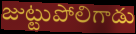
జుట్టుపోలిగాడు